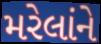
મરેલાંને